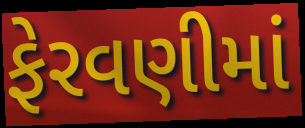
ફેરવણીમાં